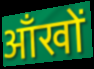
आँखों